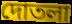
দোতলা